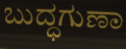
ಬುದ್ಧಗುಣಾ